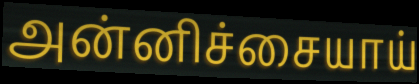
அன்னிச்சையாய்